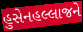
હુસેનહલ્લાજને